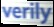
verily